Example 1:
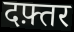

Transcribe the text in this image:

दफ़्तर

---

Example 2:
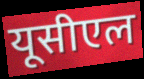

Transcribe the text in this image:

यूसीएल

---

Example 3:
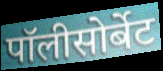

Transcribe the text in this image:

पॉलीसोर्बेट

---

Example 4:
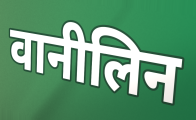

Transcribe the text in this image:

वानीलिन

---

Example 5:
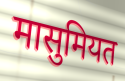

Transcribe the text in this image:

मासुमियत